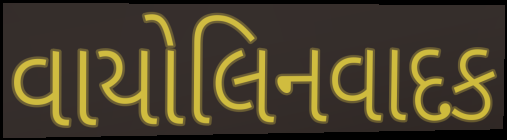
વાયોલિનવાદક